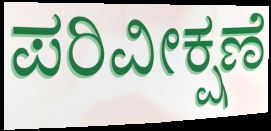
ಪರಿವೀಕ್ಷಣೆ